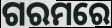
ଗରମରେ